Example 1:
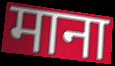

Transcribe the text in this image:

माना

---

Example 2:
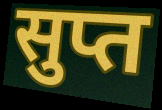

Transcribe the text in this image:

सुप्त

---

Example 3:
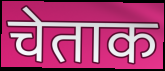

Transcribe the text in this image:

चेताक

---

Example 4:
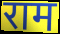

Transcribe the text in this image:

राम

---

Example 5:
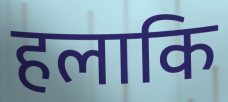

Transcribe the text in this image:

हलाकि